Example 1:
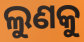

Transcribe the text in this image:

ଲୁଣକୁ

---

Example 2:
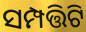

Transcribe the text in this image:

ସମ୍ପତ୍ତିଟି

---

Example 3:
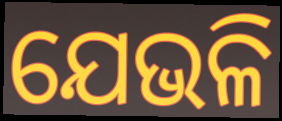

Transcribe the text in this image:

ଯେଭଳି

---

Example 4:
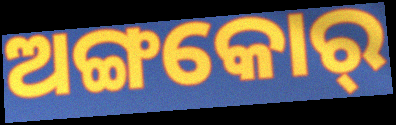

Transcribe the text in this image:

ଅଙ୍ଗକୋର୍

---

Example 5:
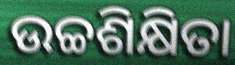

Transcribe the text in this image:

ଉଚ୍ଚଶିକ୍ଷିତା